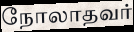
நோலாதவர்